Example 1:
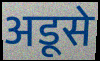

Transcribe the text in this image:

अडूसे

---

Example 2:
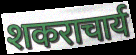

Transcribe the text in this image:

शकराचार्य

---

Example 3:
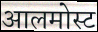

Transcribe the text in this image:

आलमोस्ट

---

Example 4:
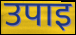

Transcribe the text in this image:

उपाइ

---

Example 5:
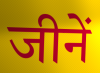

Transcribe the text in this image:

जीनें